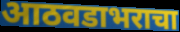
आठवडाभराचा